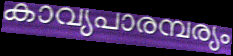
കാവ്യപാരമ്പര്യം